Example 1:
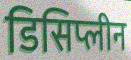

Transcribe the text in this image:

डिसिप्लीन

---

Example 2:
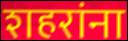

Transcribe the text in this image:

शहरांना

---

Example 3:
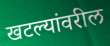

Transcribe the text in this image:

खटल्यांवरील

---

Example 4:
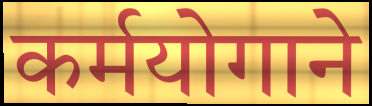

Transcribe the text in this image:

कर्मयोगाने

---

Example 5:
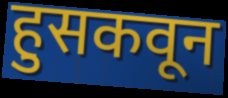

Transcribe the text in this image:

हुसकवून